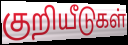
குறியீடுகள்